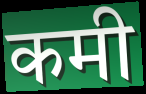
कमी